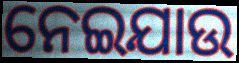
ନେଇଯାଉ